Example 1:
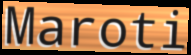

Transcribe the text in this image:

Maroti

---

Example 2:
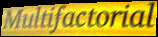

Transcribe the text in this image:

Multifactorial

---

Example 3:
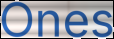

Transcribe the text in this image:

Ones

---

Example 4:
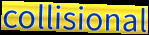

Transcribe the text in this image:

collisional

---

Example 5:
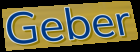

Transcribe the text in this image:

Geber